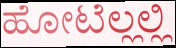
ಹೋಟೆಲ್ಲಲ್ಲಿ